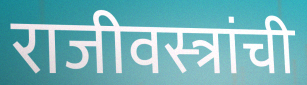
राजीवस्त्रांची